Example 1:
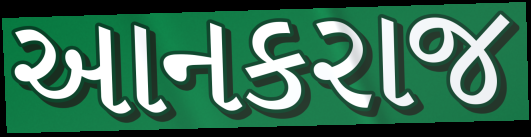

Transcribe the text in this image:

આનકરાજ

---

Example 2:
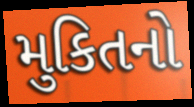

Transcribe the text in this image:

મુકિતનો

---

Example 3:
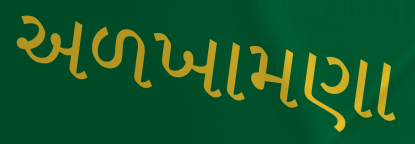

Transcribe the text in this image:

અળખામણા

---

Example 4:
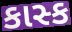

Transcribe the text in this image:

કાસ્ક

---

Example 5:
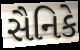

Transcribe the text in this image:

સૈનિકે